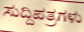
ಸುದ್ದಿಪತ್ರಗಳು